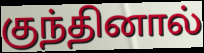
குந்தினால்